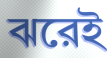
ঝরেই